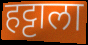
हट्टाला